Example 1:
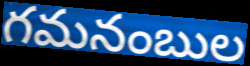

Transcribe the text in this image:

గమనంబుల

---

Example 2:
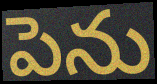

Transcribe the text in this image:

పెను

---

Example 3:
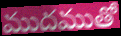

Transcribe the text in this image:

ముదముతో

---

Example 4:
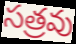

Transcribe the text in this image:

సత్రవు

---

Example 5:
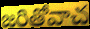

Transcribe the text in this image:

జరితోవాచ